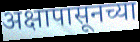
अक्षापासूनच्या